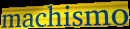
machismo